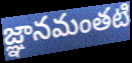
జ్ఞానమంతటి